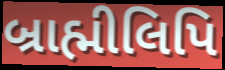
બ્રાહ્મીલિપિ